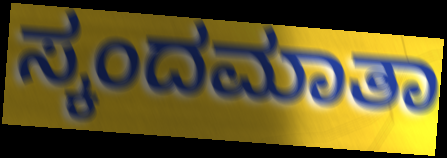
ಸ್ಕಂದಮಾತಾ